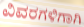
ವಿವರಗಳಿಗಾಗಿ